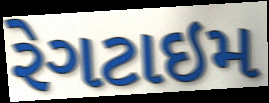
રેગટાઇમ